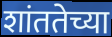
शांततेच्या